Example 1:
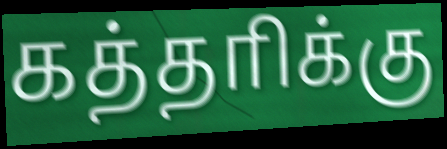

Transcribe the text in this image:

கத்தரிக்கு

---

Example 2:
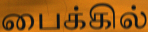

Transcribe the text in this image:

பைக்கில்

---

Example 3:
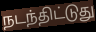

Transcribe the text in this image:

நடந்திட்டுது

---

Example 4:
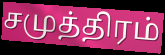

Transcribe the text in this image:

சமுத்திரம்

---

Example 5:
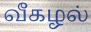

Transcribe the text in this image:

வீகழல்